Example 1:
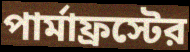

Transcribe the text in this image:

পার্মাফ্রস্টের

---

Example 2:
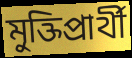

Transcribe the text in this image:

মুক্তিপ্রার্থী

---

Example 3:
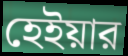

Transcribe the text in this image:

হেইয়ার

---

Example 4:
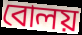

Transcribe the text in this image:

বোলয়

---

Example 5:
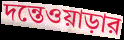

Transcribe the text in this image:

দন্তেওয়াড়ার